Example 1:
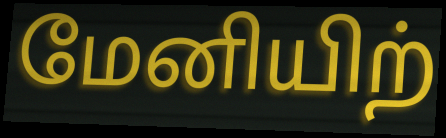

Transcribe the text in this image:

மேனியிற்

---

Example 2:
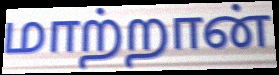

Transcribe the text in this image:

மாற்றான்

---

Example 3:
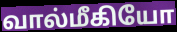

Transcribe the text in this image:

வால்மீகியோ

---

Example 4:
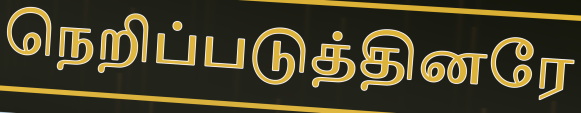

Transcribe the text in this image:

நெறிப்படுத்தினரே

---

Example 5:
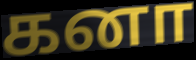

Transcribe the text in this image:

கனா